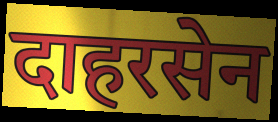
दाहरसेन